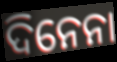
ଦିନେନା